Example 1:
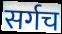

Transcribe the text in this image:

सर्गच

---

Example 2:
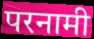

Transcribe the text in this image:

परनामी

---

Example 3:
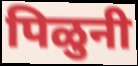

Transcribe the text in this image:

पिळुनी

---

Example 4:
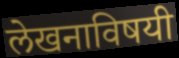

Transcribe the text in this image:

लेखनाविषयी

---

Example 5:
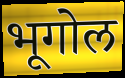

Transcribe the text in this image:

भूगोल